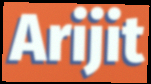
Arijit